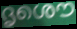
ദൃശൌ